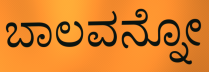
ಬಾಲವನ್ನೋ